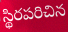
స్థిరపరిచిన